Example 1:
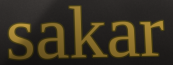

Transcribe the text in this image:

sakar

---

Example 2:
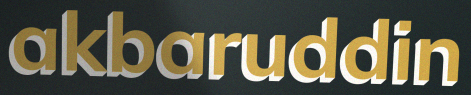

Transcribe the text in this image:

akbaruddin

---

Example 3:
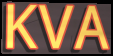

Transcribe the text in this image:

KVA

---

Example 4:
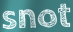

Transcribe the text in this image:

snot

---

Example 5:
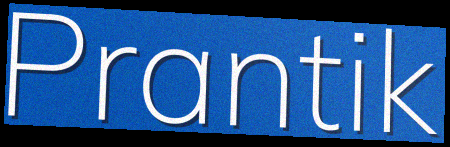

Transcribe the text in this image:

Prantik